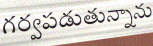
గర్వపడుతున్నాను